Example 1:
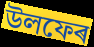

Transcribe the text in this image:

উলফেৰ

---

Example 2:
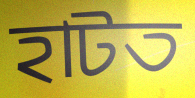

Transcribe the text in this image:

হাটত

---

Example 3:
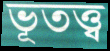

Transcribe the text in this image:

ভূতত্ত্ব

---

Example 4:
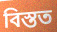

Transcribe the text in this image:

বিস্তত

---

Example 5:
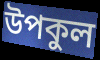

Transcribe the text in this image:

উপকুল